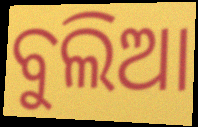
ବୁଲିଆ